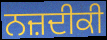
ਨਜ਼ਦੀਕੀ